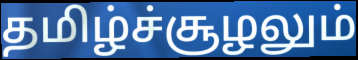
தமிழ்ச்சூழலும்